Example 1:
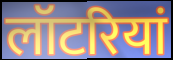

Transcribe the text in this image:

लॉटरियां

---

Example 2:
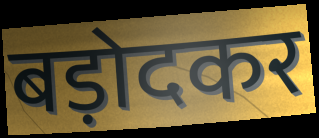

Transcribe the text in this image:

बड़ोदकर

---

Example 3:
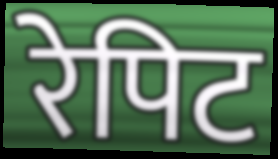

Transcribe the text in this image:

रेपिट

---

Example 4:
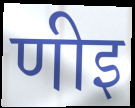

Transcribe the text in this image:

णीइ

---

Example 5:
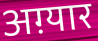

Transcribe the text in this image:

अग़्यार